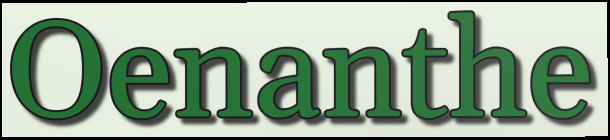
Oenanthe